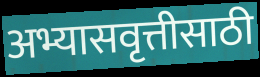
अभ्यासवृत्तीसाठी